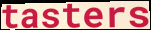
tasters